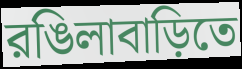
রঙিলাবাড়িতে